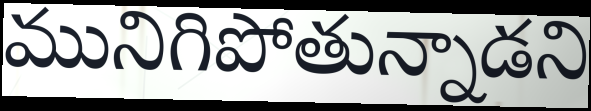
మునిగిపోతున్నాడని